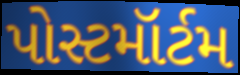
પોસ્ટમૉર્ટમ